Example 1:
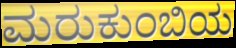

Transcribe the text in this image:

ಮರುಕುಂಬಿಯ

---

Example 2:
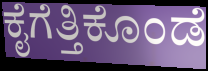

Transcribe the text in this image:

ಕೈಗೆತ್ತಿಕೊಂಡೆ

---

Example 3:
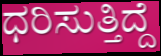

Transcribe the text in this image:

ಧರಿಸುತ್ತಿದ್ದೆ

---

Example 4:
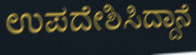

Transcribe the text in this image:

ಉಪದೇಶಿಸಿದ್ದಾನೆ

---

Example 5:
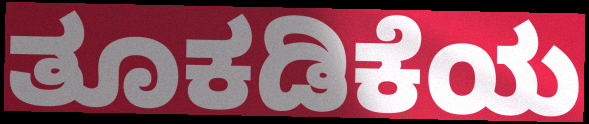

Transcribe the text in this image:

ತೂಕಡಿಕೆಯ